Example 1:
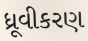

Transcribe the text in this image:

ધ્રૂવીકરણ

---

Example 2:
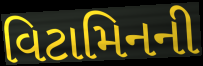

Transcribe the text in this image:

વિટામિનની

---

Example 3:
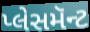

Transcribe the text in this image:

પ્લેસમૅન્ટ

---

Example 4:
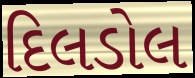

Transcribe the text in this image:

દિલડોલ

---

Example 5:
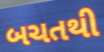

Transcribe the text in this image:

બચતથી